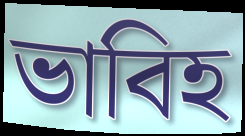
ভাবিহ